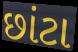
છાંટા